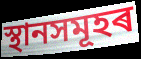
স্থানসমূহৰ